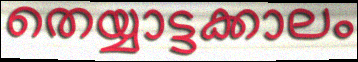
തെയ്യാട്ടക്കാലം